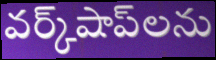
వర్క్‌షాప్‌లను